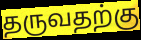
தருவதற்கு